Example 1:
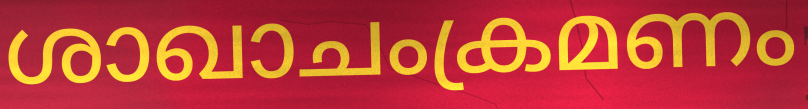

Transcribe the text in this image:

ശാഖാചംക്രമണം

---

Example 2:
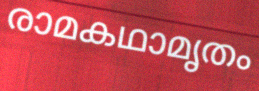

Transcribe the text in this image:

രാമകഥാമൃതം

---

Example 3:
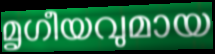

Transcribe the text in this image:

മൃഗീയവുമായ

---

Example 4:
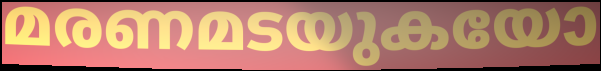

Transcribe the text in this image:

മരണമടയുകയോ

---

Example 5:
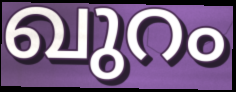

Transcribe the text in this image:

ഖുറം